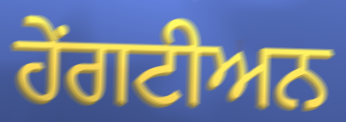
ਹੇਂਗਟੀਅਨ